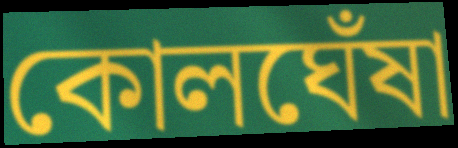
কোলঘেঁষা